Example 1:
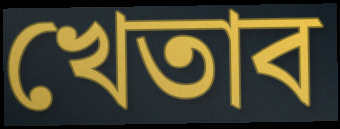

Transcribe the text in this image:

খেতাব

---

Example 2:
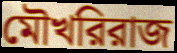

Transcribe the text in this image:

মৌখরিরাজ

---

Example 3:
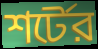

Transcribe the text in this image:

শর্টের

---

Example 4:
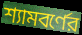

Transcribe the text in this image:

শ্যামবর্ণের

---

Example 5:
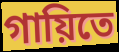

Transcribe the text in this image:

গায়িতে